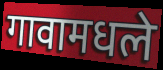
गावामधले